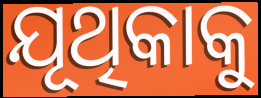
ଯୂଥିକାକୁ